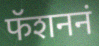
फॅशननं